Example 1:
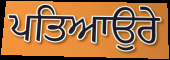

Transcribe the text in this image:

ਪਤਿਆਉਰੇ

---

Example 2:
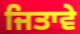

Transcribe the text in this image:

ਜਿਤਾਵੇ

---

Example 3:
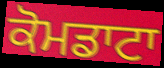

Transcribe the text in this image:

ਕੋਮਡਾਟਾ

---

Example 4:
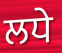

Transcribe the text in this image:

ਲਧੇ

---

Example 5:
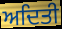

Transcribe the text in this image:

ਅਦਿਤੀ